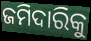
ଜମିଦାରିକୁ